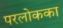
परलोकका